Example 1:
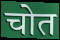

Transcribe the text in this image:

चोत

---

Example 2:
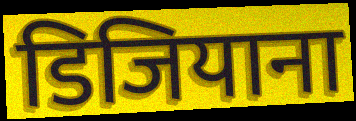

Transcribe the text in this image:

डिजियाना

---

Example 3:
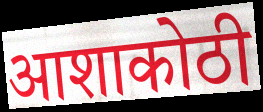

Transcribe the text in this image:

आशाकोठी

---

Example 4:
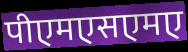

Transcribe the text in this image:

पीएमएसएमए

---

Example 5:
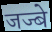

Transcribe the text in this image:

जज्बे